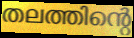
തലത്തിന്റെ